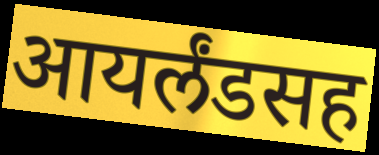
आयर्लंडसह